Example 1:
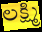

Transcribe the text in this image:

లక్ష్మి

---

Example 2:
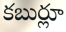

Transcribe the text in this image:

కబుర్లూ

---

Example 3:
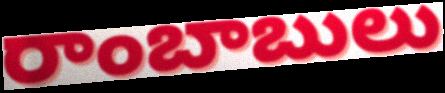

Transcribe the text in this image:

రాంబాబులు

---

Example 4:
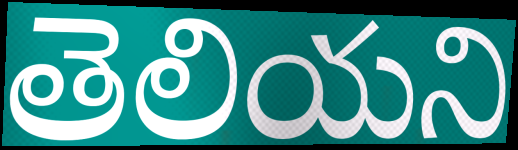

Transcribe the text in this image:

తెలియని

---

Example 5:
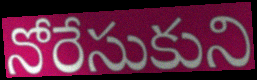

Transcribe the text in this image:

నోరేసుకుని